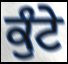
ਕੁੰਟੇ